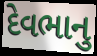
દેવભાનુ